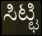
ಸಿಟ್ಟಿ